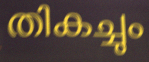
തികച്ചും